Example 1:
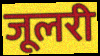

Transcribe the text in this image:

जूलरी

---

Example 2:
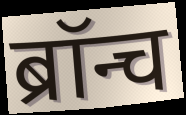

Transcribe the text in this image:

ब्रॉन्च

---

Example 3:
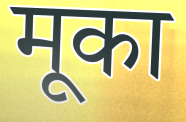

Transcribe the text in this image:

मूका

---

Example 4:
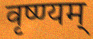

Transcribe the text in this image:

वृष्ण्यम्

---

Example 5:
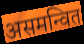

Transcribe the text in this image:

असमन्वित